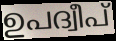
ഉപദ്വീപ്